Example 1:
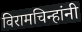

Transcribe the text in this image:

विरामचिन्हांनी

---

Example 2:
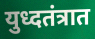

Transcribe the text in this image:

युध्दतंत्रात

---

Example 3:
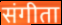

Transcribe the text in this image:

संगीता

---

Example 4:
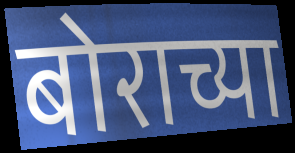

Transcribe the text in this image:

बोराच्या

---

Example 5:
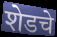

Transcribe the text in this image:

शेडचे